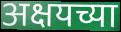
अक्षयच्या